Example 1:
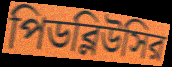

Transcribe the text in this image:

পিডব্লিউসির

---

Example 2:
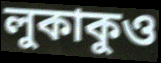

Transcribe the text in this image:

লুকাকুও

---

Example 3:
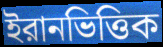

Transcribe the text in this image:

ইরানভিত্তিক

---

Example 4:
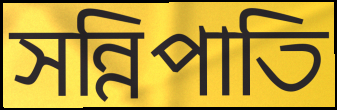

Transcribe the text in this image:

সন্নিপাতি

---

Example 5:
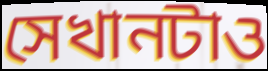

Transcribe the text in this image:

সেখানটাও